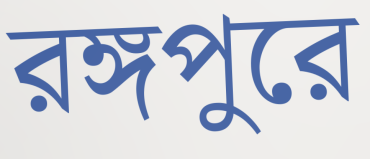
রঙ্গপুরে